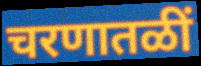
चरणातळीं